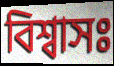
বিশ্বাসঃ